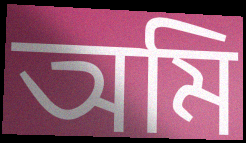
অমি